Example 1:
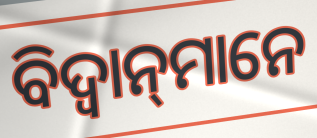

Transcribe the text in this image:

ବିଦ୍ୱାନ୍‌ମାନେ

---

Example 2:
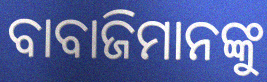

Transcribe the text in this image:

ବାବାଜିମାନଙ୍କୁ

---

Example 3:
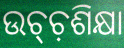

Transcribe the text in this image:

ଉଚ୍ଚ଼ଶିକ୍ଷା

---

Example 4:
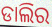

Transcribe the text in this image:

ଡାଲିର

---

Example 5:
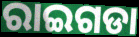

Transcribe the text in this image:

ରାଇଗଡା